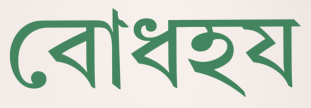
বোধহয